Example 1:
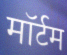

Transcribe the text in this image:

मॉर्टम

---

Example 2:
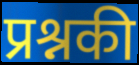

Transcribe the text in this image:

प्रश्नकी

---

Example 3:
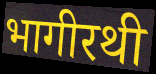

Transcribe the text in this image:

भागीरथी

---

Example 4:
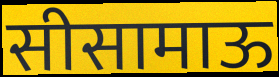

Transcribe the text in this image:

सीसामाऊ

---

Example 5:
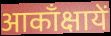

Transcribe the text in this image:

आकाँक्षायें